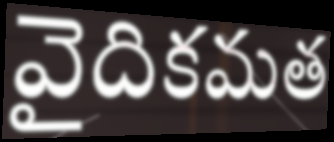
వైదికమత